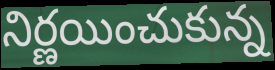
నిర్ణయించుకున్న